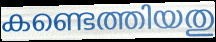
കണ്ടെത്തിയതു